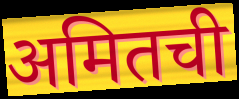
अमितची